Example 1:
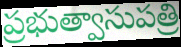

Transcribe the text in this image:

ప్రభుత్వాసుపత్రి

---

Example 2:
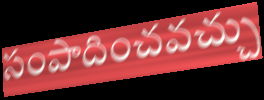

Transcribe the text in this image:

సంపాదించవచ్చు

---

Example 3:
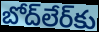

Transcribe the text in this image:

బోద్‌లేర్‌కు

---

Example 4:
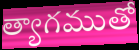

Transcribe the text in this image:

త్యాగముతో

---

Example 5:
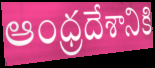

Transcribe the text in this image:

ఆంధ్రదేశానికి